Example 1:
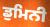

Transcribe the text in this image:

ਡੁਮਿਨੀ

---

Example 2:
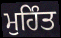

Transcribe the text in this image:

ਮੁਹਿੰਤ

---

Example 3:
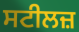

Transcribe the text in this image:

ਸਟੀਲਜ਼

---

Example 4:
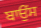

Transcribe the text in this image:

ਬਾਉਂਸ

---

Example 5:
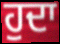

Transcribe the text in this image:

ਹੁਦਾ